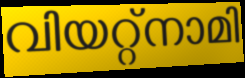
വിയറ്റ്നാമി